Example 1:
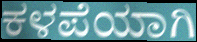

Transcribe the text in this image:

ಕಳಪೆಯಾಗಿ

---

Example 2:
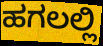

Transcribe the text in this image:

ಹಗಲಲ್ಲಿ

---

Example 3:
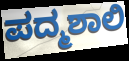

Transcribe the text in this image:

ಪದ್ಮಶಾಲಿ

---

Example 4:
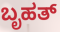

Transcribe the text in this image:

ಬೃಹತ್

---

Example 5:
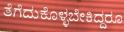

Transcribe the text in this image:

ತೆಗೆದುಕೊಳ್ಳಬೇಕಿದ್ದರೂ